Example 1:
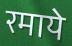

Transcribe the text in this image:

रमाये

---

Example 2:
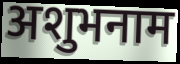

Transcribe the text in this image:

अशुभनाम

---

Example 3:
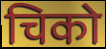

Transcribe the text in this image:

चिको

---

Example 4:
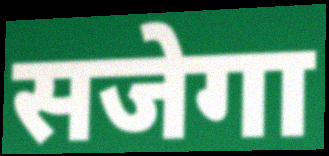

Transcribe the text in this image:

सजेगा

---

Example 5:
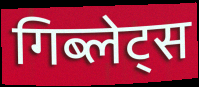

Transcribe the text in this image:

गिब्लेट्स